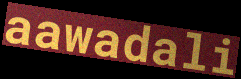
aawadali